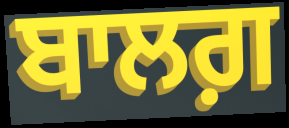
ਬਾਲਗ਼